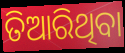
ତିଆରିଥିବା